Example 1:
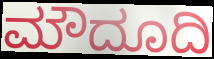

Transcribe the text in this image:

ಮೌದೂದಿ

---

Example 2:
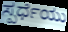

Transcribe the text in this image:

ಸ್ಪರ್ಧೆಯು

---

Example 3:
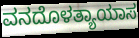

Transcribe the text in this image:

ವನದೊಳತ್ಯಾಯಾಸ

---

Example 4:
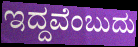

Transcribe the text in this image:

ಇದ್ದವೆಂಬುದು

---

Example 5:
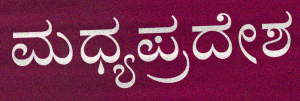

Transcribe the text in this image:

ಮಧ್ಯಪ್ರದೇಶ